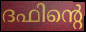
ദഫിന്റെ